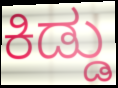
ಕಿಡ್ಡು